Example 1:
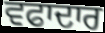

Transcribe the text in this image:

ਵਫਾਦਾਰ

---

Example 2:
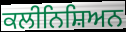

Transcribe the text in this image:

ਕਲੀਨਿਸ਼ਿਅਨ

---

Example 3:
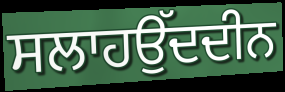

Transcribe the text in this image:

ਸਲਾਹਉੱਦਦੀਨ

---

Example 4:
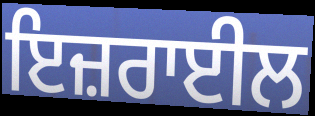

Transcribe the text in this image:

ਇਜ਼ਰਾਈਲ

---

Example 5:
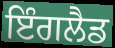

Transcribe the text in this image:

ਇੰਗਲੈਡ